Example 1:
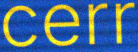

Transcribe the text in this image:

cerr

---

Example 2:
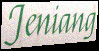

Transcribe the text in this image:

Jeniang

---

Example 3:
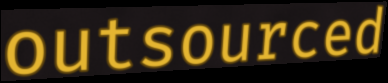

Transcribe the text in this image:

outsourced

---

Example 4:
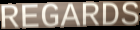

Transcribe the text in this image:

REGARDS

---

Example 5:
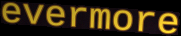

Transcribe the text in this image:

evermore